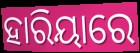
ହାରିୟାରେ